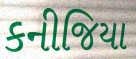
કનીજિયા